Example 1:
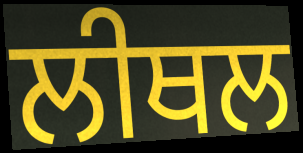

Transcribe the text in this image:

ਲੀਥਲ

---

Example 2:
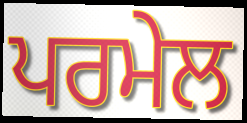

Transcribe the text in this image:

ਪਰਮੇਲ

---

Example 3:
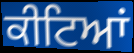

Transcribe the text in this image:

ਕੀਟਿਆਂ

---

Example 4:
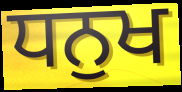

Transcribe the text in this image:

ਧਨੁਖ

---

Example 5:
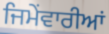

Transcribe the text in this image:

ਜਿਮੇਂਵਾਰੀਆਂ